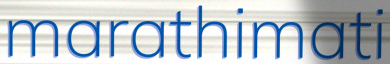
marathimati